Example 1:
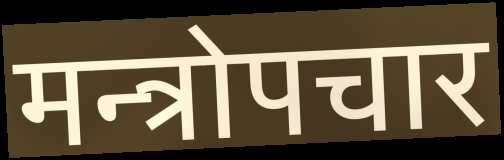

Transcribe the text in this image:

मन्त्रोपचार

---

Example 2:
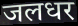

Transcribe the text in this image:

जलधर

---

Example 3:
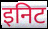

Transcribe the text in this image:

इनिट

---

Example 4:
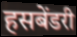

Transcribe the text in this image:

हसबेंडरी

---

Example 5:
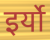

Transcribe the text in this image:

इर्यो